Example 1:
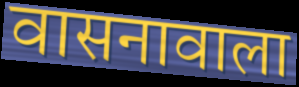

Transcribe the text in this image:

वासनावाला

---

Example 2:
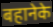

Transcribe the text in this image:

बहानेके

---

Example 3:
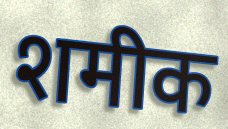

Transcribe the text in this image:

शमीक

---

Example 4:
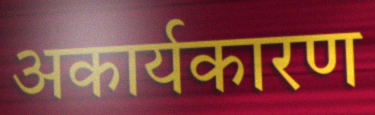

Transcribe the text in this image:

अकार्यकारण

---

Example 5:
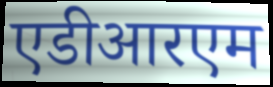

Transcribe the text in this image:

एडीआरएम